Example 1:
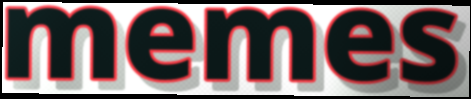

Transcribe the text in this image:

memes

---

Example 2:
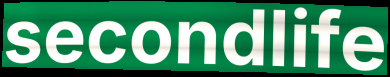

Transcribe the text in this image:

secondlife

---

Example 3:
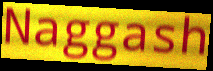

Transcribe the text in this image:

Naggash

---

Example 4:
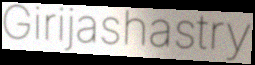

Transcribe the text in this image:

Girijashastry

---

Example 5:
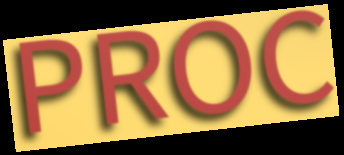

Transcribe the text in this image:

PROC